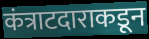
कंत्राटदाराकडून